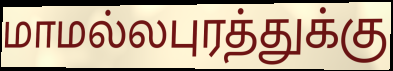
மாமல்லபுரத்துக்கு